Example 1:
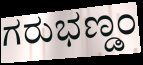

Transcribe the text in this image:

ಗರುಭಣ್ಡಂ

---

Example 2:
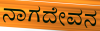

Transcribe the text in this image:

ನಾಗದೇವನ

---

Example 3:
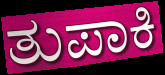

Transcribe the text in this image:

ತುಪಾಕಿ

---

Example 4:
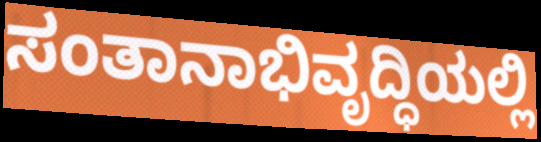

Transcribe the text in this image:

ಸಂತಾನಾಭಿವೃದ್ಧಿಯಲ್ಲಿ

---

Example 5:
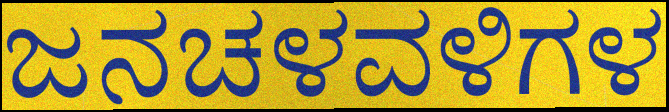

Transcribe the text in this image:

ಜನಚಳವಳಿಗಳ